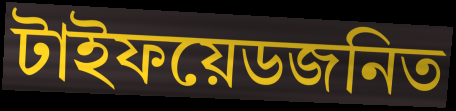
টাইফয়েডজনিত